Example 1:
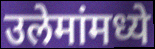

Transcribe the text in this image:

उलेमांमध्ये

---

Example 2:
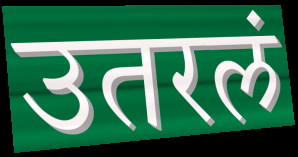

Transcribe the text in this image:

उतरलं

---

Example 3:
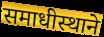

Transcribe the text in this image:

समाधीस्थाने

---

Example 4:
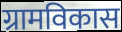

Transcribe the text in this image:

ग्रामविकास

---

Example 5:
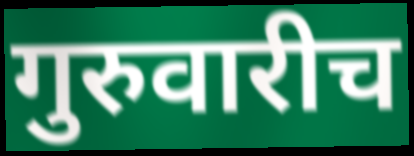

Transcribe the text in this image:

गुरुवारीच